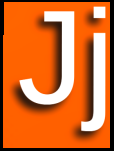
Jj